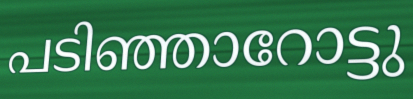
പടിഞ്ഞാറോട്ടു